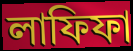
লাফিফা